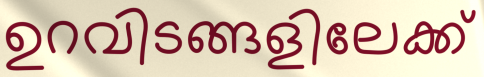
ഉറവിടങ്ങളിലേക്ക്